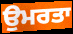
ਉਮਰਤਾ